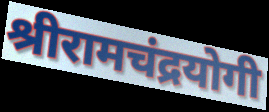
श्रीरामचंद्रयोगी